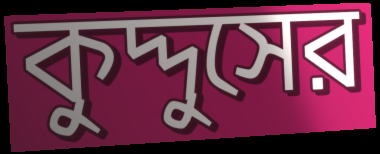
কুদ্দুসের